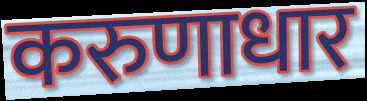
करुणाधार